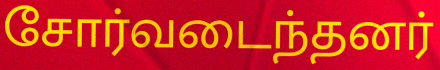
சோர்வடைந்தனர்